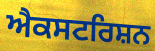
ਐਕਸਟਰਿਸ਼ਨ